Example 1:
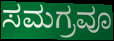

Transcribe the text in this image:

ಸಮಗ್ರವೂ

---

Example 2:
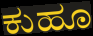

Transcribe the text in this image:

ಕುಹೂ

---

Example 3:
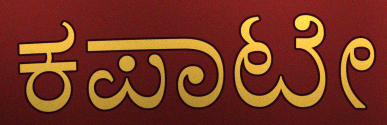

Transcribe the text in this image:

ಕಪಾಟೇ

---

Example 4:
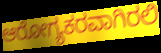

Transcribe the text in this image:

ಆರೋಗ್ಯಕರವಾಗಿರಲಿ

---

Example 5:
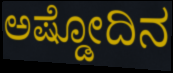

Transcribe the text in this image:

ಅಷ್ಡೋದಿನ